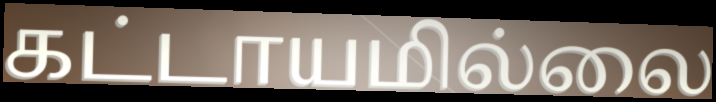
கட்டாயமில்லை